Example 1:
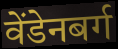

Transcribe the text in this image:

वेंडेनबर्ग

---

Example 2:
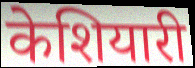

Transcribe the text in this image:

केशियारी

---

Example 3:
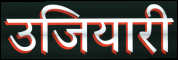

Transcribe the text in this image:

उजियारी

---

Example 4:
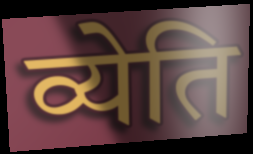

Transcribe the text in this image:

व्येति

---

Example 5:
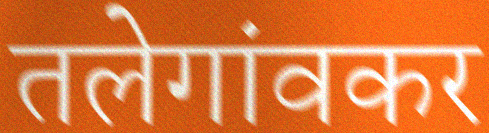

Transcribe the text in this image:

तलेगांवकर